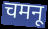
चमनू